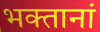
भक्तानां